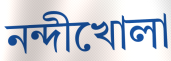
নন্দীখোলা